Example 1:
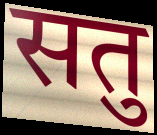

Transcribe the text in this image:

सतु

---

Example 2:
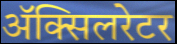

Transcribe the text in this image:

ॲक्सिलरेटर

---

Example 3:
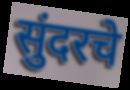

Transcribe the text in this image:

सुंदरचे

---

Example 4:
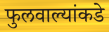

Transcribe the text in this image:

फुलवाल्यांकडे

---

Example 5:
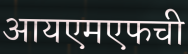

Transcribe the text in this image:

आयएमएफची